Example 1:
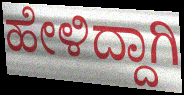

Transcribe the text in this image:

ಹೇಳಿದ್ದಾಗಿ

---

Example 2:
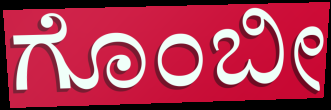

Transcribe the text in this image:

ಗೊಂಬೀ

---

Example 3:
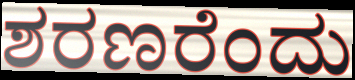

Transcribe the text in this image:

ಶರಣರೆಂದು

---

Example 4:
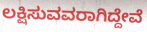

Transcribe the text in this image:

ಲಕ್ಷಿಸುವವರಾಗಿದ್ದೇವೆ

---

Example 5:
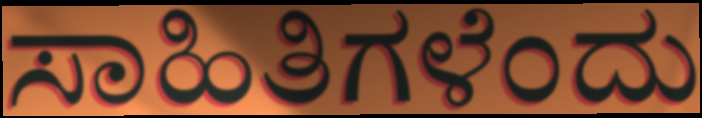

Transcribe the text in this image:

ಸಾಹಿತಿಗಳೆಂದು